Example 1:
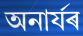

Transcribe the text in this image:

অনাৰ্যৰ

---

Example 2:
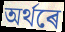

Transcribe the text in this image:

অৰ্থৰে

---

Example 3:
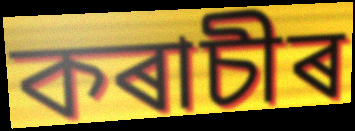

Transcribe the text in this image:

কৰাচীৰ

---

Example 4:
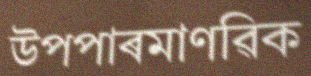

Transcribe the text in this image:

উপপাৰমাণৱিক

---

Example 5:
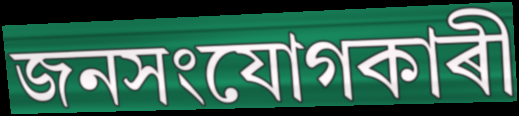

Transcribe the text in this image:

জনসংযোগকাৰী